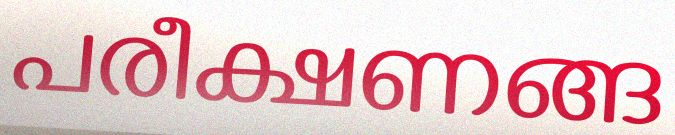
പരീക്ഷണങ്ങ